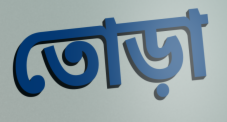
তোড়া